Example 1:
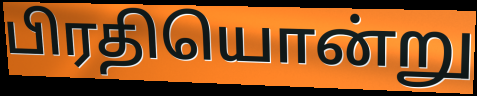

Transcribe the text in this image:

பிரதியொன்று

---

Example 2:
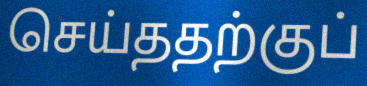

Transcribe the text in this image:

செய்ததற்குப்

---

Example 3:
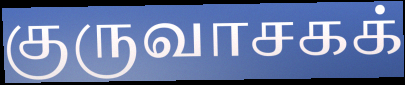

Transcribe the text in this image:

குருவாசகக்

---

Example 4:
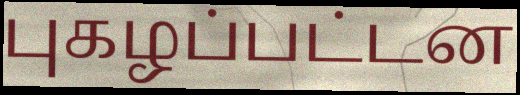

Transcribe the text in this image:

புகழப்பட்டன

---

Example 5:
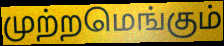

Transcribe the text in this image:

முற்றமெங்கும்